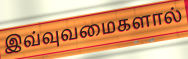
இவ்வுவமைகளால்